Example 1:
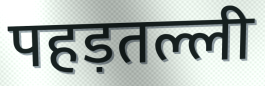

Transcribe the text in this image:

पहड़तल्ली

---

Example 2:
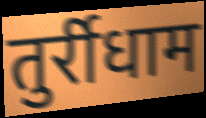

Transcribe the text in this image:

तुर्रीधाम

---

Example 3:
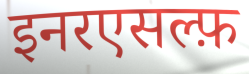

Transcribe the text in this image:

इनरएसल्फ़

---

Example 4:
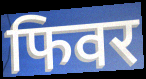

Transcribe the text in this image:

फिवर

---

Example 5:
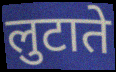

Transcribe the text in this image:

लुटाते